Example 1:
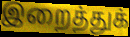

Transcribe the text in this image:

இறைத்துக்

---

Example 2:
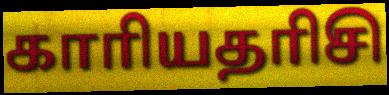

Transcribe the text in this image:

காரியதரிசி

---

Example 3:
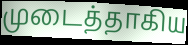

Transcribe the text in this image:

முடைத்தாகிய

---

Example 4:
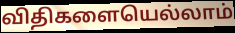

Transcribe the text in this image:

விதிகளையெல்லாம்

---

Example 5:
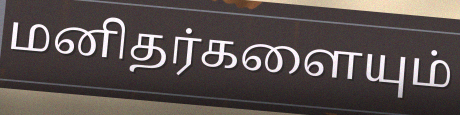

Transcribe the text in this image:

மனிதர்களையும்